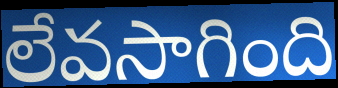
లేవసాగింది